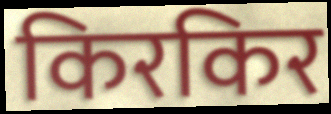
किरकिर